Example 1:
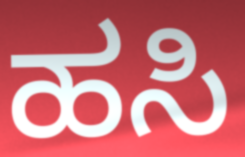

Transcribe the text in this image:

ಹಸಿ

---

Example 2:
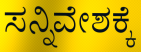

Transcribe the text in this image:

ಸನ್ನಿವೇಶಕ್ಕೆ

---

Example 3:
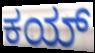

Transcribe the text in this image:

ಕಯ್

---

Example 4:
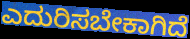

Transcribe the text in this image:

ಎದುರಿಸಬೇಕಾಗಿದೆ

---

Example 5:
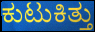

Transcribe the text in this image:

ಕುಟುಕಿತ್ತು